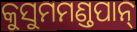
କୁସୁମମଣ୍ଡପାନ୍